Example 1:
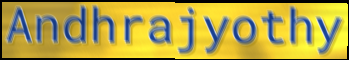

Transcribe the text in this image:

Andhrajyothy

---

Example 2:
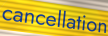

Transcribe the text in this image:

cancellation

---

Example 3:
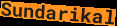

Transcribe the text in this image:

Sundarikal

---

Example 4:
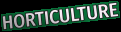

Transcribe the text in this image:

HORTICULTURE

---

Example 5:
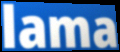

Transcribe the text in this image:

lama